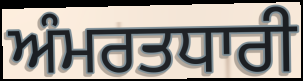
ਅੰਮਰਤਧਾਰੀ